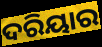
ଦରିୟାର